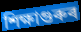
শিক্ষাগুৰুৰ